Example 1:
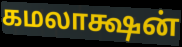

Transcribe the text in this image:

கமலாக்ஷன்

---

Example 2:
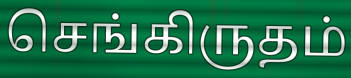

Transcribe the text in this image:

செங்கிருதம்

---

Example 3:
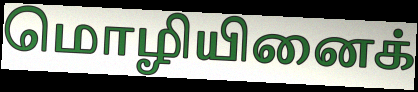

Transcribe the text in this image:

மொழியினைக்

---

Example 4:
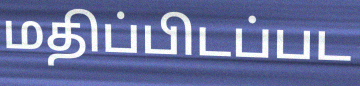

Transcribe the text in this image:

மதிப்பிடப்பட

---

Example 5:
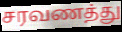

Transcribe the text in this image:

சரவணத்து